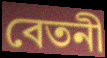
বেতনী